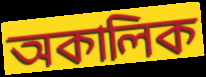
অকালিক